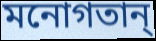
মনোগতান্